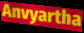
Anvyartha